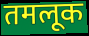
तमलूक